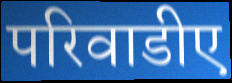
परिवाडीए